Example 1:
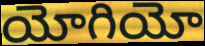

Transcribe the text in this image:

యోగియో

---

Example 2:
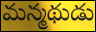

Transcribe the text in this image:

మన్మథుడు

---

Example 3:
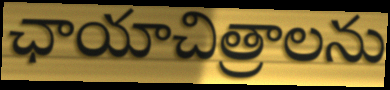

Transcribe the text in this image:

ఛాయాచిత్రాలను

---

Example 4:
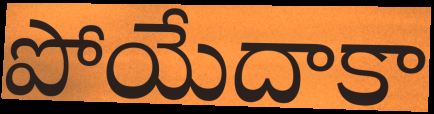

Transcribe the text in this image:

పోయేదాకా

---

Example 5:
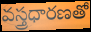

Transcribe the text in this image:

వస్త్రధారణతో